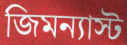
জিমন্যাস্ট